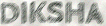
DIKSHA